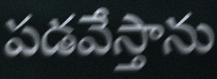
పడవేస్తాను